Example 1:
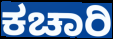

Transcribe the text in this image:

ಕಚಾರಿ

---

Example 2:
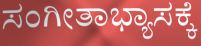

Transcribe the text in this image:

ಸಂಗೀತಾಭ್ಯಾಸಕ್ಕೆ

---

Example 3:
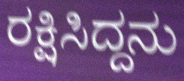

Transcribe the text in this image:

ರಕ್ಷಿಸಿದ್ದನು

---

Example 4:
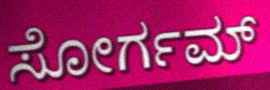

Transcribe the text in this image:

ಸೋರ್ಗಮ್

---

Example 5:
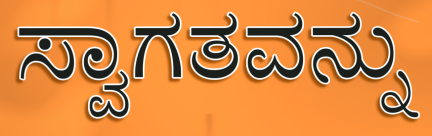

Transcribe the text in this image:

ಸ್ವಾಗತವನ್ನು